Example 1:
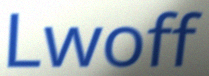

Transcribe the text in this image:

Lwoff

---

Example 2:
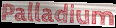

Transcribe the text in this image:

Palladium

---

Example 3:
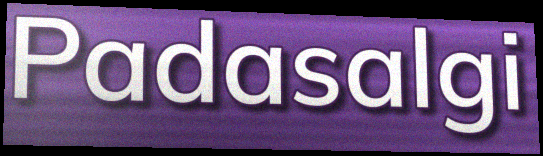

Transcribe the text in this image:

Padasalgi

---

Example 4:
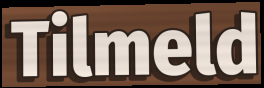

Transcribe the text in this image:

Tilmeld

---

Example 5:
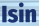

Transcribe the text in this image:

Isin